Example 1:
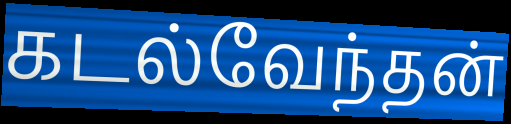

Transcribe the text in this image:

கடல்வேந்தன்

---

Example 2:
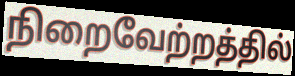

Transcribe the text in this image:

நிறைவேற்றத்தில்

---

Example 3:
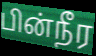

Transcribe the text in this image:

பின்நீர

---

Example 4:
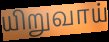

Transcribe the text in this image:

யிறுவாய்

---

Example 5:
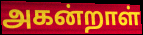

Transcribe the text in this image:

அகன்றாள்